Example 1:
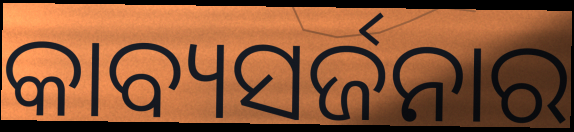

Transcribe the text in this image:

କାବ୍ୟସର୍ଜନାର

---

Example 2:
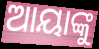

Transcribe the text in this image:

ଆୟାଙ୍କୁ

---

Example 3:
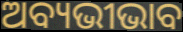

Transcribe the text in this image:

ଅବ୍ୟଭୀଭାବ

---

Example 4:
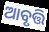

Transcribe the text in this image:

ଆବୃତ୍ତି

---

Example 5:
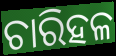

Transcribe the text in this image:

ଚାରିହଳ